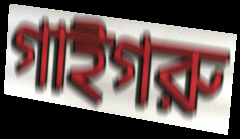
গাইগৰু